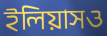
ইলিয়াসও